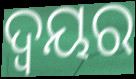
ଦ୍ଵୟର